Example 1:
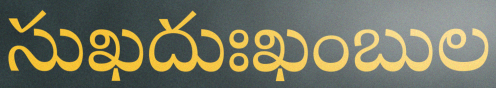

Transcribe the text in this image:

సుఖదుఃఖంబుల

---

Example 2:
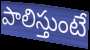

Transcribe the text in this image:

పాలిస్తుంటే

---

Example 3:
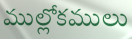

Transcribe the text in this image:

ముల్లోకములు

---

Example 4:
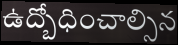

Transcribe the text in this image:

ఉద్బోధించాల్సిన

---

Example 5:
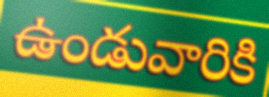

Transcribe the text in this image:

ఉండువారికి